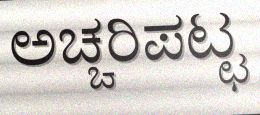
ಅಚ್ಚರಿಪಟ್ಟ